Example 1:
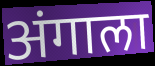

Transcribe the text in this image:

अंगाला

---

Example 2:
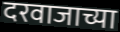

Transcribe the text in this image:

दरवाजाच्या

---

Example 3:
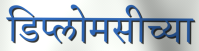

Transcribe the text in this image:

डिप्लोमसीच्या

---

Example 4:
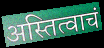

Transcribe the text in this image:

अस्तित्वाचं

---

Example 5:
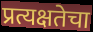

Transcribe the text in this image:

प्रत्यक्षतेचा